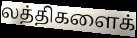
லத்திகளைக்